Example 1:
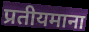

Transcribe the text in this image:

प्रतीयमाना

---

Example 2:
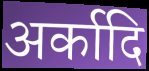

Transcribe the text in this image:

अर्कादि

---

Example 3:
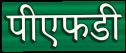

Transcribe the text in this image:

पीएफडी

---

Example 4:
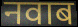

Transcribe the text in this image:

नवाब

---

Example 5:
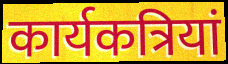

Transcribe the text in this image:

कार्यकत्रियां